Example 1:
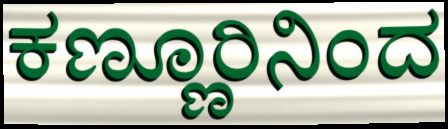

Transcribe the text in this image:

ಕಣ್ಣೂರಿನಿಂದ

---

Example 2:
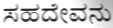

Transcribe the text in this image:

ಸಹದೇವನು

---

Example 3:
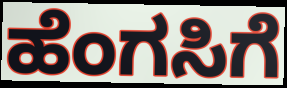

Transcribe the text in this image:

ಹೆಂಗಸಿಗೆ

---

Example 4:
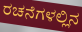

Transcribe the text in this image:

ರಚನೆಗಳಲ್ಲಿನ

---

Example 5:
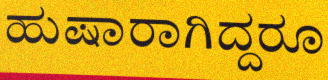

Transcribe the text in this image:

ಹುಷಾರಾಗಿದ್ದರೂ